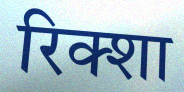
रिक्‍शा